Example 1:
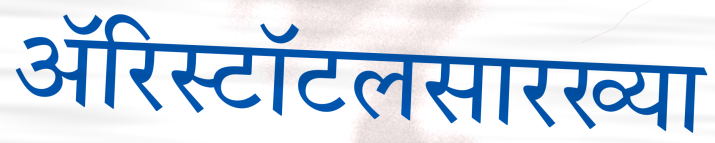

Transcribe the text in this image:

ॲरिस्टॉटलसारख्या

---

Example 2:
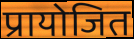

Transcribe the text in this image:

प्रायोजित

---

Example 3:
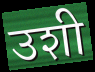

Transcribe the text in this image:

उशी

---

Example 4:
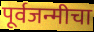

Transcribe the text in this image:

पूर्वजन्मीचा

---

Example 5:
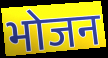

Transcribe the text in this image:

भोजन